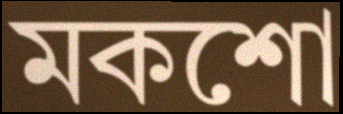
মকশো